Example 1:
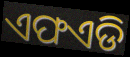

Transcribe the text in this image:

ଏଫଏଡି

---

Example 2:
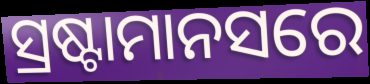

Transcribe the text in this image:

ସ୍ରଷ୍ଟାମାନସରେ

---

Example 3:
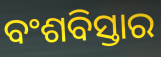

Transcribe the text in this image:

ବଂଶବିସ୍ତାର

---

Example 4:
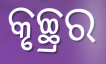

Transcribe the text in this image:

କୃଚ୍ଛ୍ରର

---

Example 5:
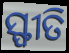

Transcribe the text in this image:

ସ୍ଫୀତି